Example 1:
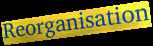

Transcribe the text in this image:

Reorganisation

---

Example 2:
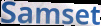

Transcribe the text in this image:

Samset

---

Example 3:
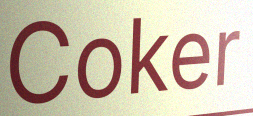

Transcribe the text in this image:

Coker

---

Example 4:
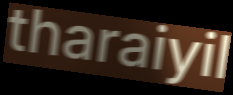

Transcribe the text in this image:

tharaiyil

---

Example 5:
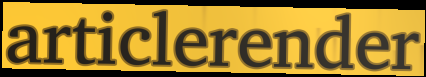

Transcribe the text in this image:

articlerender